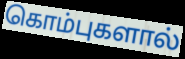
கொம்புகளால்